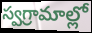
స్వగ్రామాల్లో